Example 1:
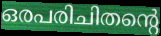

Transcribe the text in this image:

ഒരപരിചിതന്റെ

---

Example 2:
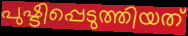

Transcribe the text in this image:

പുഷ്ടിപ്പെടുത്തിയത്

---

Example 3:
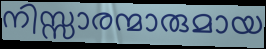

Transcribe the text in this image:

നിസ്സാരന്മാരുമായ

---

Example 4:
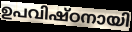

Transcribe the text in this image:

ഉപവിഷ്ഠനായി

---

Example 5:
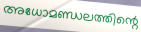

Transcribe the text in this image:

അധോമണ്ഡലത്തിന്റെ